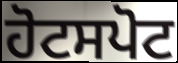
ਹੋਟਸਪੋਟ